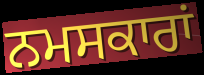
ਨਮਸਕਾਰਾਂ